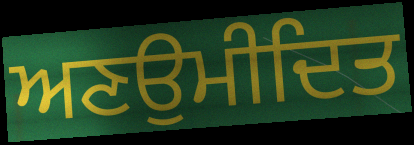
ਅਣਉਮੀਦਿਤ